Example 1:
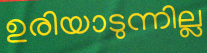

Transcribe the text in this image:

ഉരിയാടുന്നില്ല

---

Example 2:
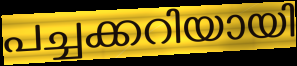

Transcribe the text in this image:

പച്ചക്കറിയായി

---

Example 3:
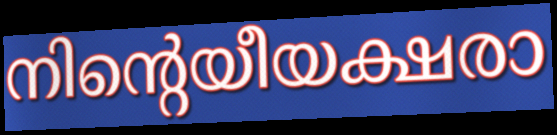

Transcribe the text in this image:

നിന്റെയീയക്ഷരാ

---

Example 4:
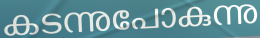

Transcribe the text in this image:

കടന്നുപോകുന്നു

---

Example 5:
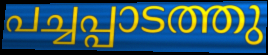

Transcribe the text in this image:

പച്ചപ്പാടത്തു